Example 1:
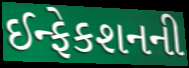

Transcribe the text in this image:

ઈન્ફેકશનની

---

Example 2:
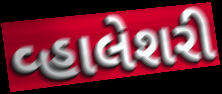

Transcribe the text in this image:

વ્હાલેશરી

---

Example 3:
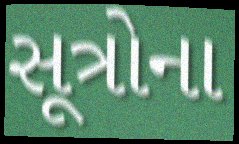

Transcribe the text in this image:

સૂત્રોના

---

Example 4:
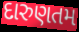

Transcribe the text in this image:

દારુણતમ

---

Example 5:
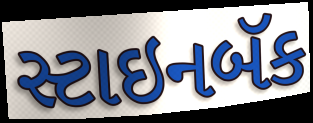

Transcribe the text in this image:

સ્ટાઇનબૅક